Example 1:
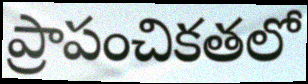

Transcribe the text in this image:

ప్రాపంచికతలో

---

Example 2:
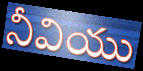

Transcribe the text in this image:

నీవియు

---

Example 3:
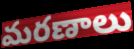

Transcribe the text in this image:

మరణాలు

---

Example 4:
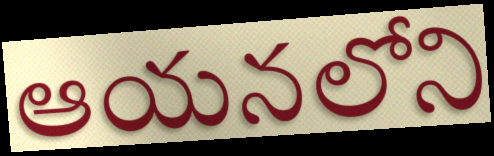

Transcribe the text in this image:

ఆయనలోని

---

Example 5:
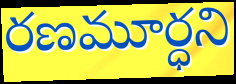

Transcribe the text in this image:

రణమూర్ధని